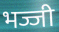
भज्जी